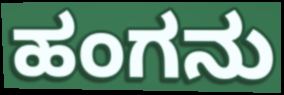
ಹಂಗನು